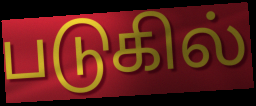
படுகில்